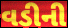
વડીની